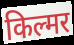
किल्मर